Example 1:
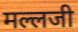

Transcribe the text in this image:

मल्लजी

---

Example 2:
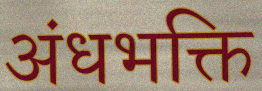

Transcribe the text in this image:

अंधभक्ति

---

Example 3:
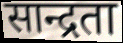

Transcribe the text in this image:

सान्द्रता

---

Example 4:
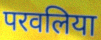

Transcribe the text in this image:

परवलिया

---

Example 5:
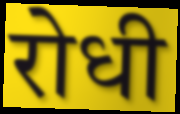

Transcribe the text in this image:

रोधी